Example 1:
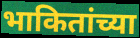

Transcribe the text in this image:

भाकितांच्या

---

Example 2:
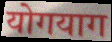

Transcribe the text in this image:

योगयाग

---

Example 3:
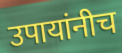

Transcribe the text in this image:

उपायांनीच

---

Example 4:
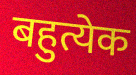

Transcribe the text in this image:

बहुत्येक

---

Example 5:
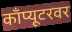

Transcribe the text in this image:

काँप्यूटरवर